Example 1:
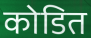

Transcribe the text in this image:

कोडित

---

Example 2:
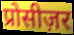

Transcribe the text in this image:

प्रोसीज़र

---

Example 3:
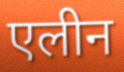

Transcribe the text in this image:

एलीन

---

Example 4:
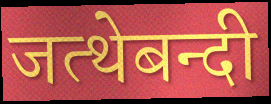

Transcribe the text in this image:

जत्थेबन्दी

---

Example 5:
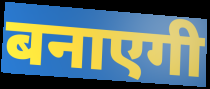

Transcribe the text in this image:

बनाएगी